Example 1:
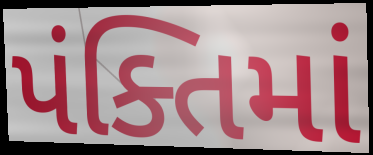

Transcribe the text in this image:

પંક્તિમાં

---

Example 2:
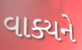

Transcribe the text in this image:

વાક્યને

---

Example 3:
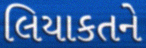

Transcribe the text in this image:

લિયાકતને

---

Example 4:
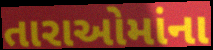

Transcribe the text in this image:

તારાઓમાંના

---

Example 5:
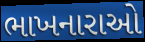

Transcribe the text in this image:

ભાખનારાઓ